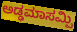
ಅಡ್ಢಮಾಸಮ್ಪಿ